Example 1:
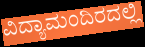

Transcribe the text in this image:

ವಿದ್ಯಾಮಂದಿರದಲ್ಲಿ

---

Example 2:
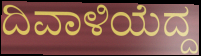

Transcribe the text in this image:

ದಿವಾಳಿಯೆದ್ದ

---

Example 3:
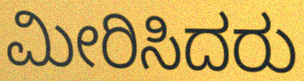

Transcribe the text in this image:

ಮೀರಿಸಿದರು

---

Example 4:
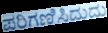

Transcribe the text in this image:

ಪರಿಗಣಿಸಿದುದು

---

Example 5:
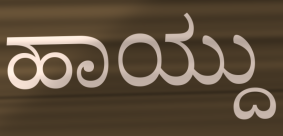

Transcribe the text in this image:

ಹಾಯ್ದು